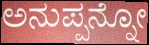
ಅನುಪ್ಪನ್ನೋ